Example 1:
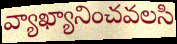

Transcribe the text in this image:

వ్యాఖ్యానించవలసి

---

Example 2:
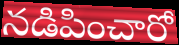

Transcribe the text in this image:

నడిపించారో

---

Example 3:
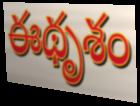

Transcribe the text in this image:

ఈథృశం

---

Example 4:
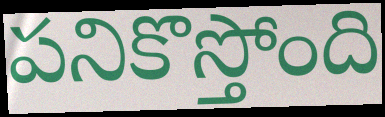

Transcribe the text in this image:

పనికొస్తోంది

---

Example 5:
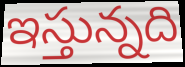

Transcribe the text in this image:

ఇస్తున్నది